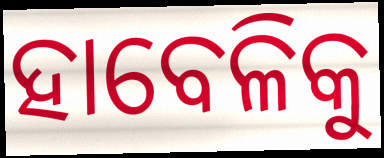
ହାବେଳିକୁ